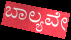
ಬಾಲ್ಯವೇ